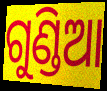
ଗୁଣ୍ଡିଆ